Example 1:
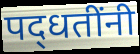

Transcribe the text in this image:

पद्धतींनी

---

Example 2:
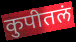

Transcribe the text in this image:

कुपीतलं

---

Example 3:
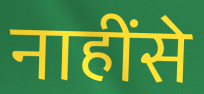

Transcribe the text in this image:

नाहींसे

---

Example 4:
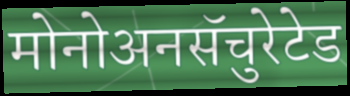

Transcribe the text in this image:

मोनोअनसॅचुरेटेड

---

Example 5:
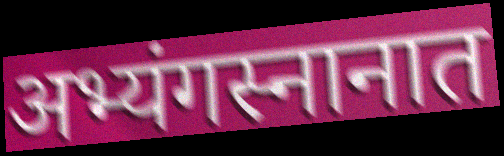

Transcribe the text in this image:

अभ्यंगस्नानात